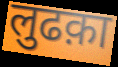
लुढक़ा